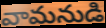
వామనుడి